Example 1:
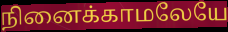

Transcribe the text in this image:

நினைக்காமலேயே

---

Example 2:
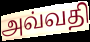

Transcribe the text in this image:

அவ்வதி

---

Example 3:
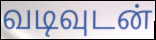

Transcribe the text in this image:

வடிவுடன்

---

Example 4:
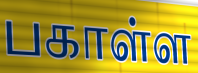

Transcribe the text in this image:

பகாள்ள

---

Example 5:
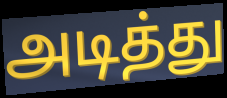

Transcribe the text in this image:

அடித்து